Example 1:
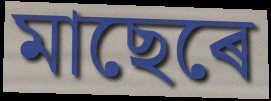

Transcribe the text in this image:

মাছেৰে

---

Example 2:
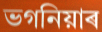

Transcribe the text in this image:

ভগনিয়াৰ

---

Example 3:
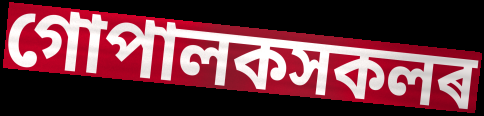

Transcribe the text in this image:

গোপালকসকলৰ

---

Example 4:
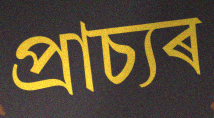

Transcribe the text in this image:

প্ৰাচ্যৰ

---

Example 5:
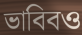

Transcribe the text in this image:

ভাবিবও